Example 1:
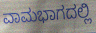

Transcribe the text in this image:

ವಾಮಭಾಗದಲ್ಲಿ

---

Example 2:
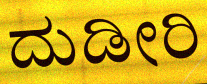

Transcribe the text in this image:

ದುಡೀರಿ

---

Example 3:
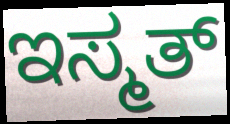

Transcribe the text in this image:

ಇಸ್ಮತ್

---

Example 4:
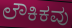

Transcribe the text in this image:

ಲೌಕಿಕವು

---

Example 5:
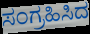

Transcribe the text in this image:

ಸಂಗ್ರಹಿಸಿದ